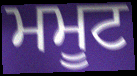
ਮਮੂਟ